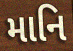
માનિ